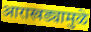
आराखड्यामुळे